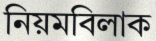
নিয়মবিলাক